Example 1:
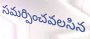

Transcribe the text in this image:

సమర్పించవలసిన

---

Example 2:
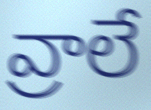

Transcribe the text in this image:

వ్రాలే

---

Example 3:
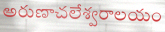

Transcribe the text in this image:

అరుణాచలేశ్వరాలయం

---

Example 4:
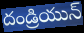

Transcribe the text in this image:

దండ్రియున్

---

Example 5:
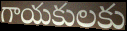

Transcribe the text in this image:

గాయకులకు